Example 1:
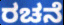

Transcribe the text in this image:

ರಚನೆ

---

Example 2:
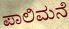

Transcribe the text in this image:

ಪಾಲಿಮನೆ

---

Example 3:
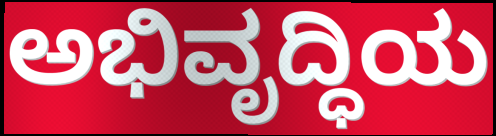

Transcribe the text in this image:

ಅಭಿವೃದ್ಧಿಯ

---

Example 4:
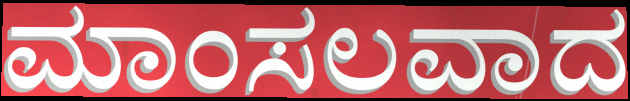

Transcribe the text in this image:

ಮಾಂಸಲವಾದ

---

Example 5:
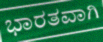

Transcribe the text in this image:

ಭಾರತವಾಗಿ